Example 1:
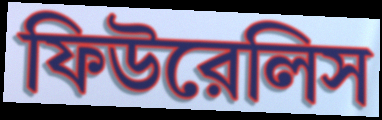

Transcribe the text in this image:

ফিউরেলিস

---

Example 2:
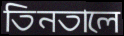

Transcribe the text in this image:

তিনতালে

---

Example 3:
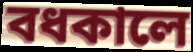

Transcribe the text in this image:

বধকালে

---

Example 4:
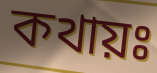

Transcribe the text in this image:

কথায়ঃ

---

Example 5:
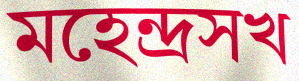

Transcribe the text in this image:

মহেন্দ্রসখ